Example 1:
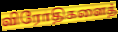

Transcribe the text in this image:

விரோதிகளைத்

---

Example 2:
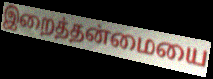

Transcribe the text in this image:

இறைத்தன்மையை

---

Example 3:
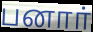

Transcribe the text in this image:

பனார்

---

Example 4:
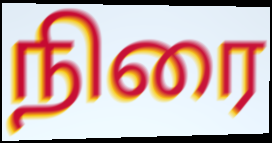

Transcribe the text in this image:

நிரை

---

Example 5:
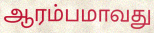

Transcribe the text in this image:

ஆரம்பமாவது